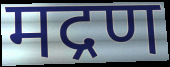
मद्रण